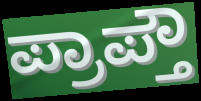
ಪ್ರಾಪ್ತೌ